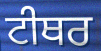
ਟੀਥਰ